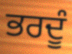
ਭਰਦੂੰ